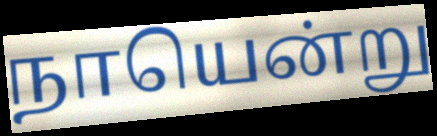
நாயென்று